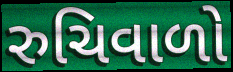
રુચિવાળો